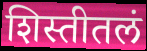
शिस्तीतलं